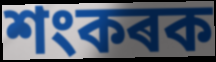
শংকৰক